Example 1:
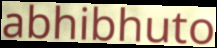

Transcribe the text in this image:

abhibhuto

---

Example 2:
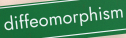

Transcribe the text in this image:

diffeomorphism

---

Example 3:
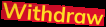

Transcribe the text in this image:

Withdraw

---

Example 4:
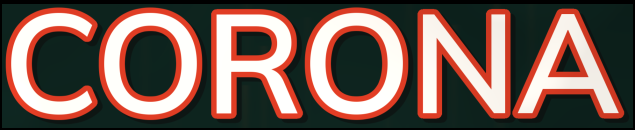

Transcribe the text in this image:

CORONA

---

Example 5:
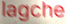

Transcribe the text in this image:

lagche